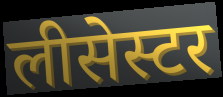
लीसेस्टर